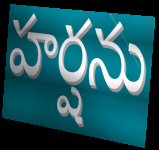
హర్షను